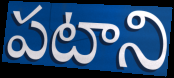
పటాని